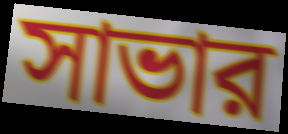
সাভার